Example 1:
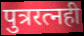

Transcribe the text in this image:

पुत्ररत्नही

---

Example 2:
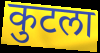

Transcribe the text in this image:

कुटला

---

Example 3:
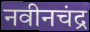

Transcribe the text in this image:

नवीनचंद्र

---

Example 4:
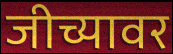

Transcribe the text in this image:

जीच्यावर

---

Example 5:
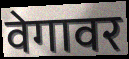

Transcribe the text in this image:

वेगावर